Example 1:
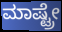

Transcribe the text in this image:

ಮಾಷ್ಟ್ರೇ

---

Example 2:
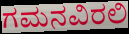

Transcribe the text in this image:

ಗಮನವಿರಲಿ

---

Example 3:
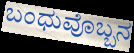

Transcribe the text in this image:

ಬಂಧುವೊಬ್ಬನ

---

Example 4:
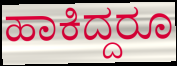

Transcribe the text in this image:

ಹಾಕಿದ್ದರೂ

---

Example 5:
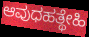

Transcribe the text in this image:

ಆವುಧಹತ್ಥೇಹಿ